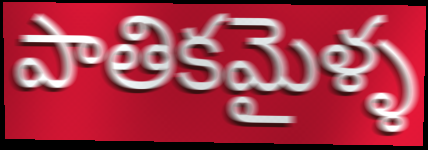
పాతికమైళ్ళ